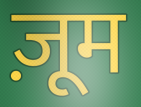
ज़ूम